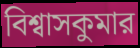
বিশ্বাসকুমার